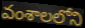
వంశాలలోని